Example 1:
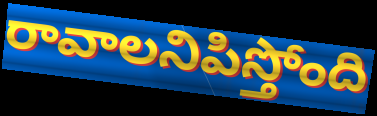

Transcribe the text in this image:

రావాలనిపిస్తోంది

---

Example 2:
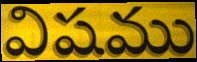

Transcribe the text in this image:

విషము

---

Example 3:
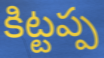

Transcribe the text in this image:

కిట్టప్ప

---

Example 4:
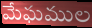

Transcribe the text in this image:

మేఘముల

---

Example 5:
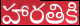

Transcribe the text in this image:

హారతికి